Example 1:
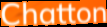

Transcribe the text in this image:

Chatton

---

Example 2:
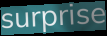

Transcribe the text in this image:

surprise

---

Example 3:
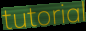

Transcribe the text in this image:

tutorial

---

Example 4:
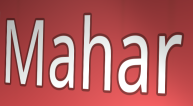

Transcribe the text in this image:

Mahar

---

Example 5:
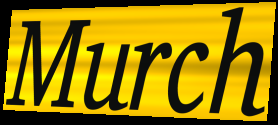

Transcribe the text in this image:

Murch